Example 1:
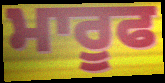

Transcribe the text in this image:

ਮਾਰੂਫ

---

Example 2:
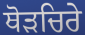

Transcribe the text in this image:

ਥੋੜਚਿਰੇ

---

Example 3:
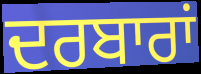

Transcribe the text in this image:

ਦਰਬਾਰਾਂ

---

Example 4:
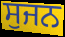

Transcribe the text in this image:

ਸੁਜਨ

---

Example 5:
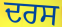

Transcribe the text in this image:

ਦਰਸ